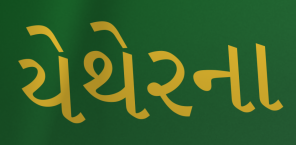
યેથેરના